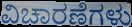
ವಿಚಾರಣೆಗಳು